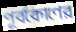
পূর্বকোণের